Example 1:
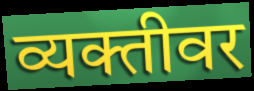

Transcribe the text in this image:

व्यक्तीवर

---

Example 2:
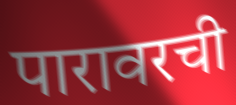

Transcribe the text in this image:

पारावरची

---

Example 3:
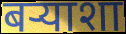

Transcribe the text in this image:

बऱ्याशा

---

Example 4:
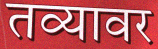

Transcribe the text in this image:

तव्यावर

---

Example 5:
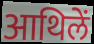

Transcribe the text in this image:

आथिलें